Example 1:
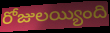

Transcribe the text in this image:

రోజులయ్యింది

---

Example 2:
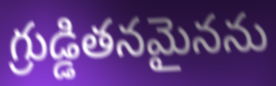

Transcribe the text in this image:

గ్రుడ్డితనమైనను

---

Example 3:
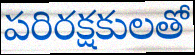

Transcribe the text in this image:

పరిరక్షకులతో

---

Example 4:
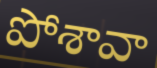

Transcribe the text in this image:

పోశావా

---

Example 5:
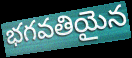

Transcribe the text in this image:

భగవతియైన